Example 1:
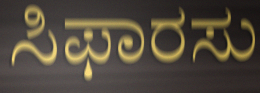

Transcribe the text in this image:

ಸಿಫಾರಸು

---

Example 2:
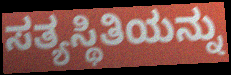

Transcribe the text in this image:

ಸತ್ಯಸ್ಥಿತಿಯನ್ನು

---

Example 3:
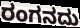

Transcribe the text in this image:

ರಂಗನದು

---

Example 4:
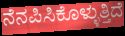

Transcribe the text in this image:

ನೆನಪಿಸಿಕೊಳ್ಳುತ್ತಿದೆ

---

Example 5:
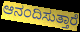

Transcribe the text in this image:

ಆನಂದಿಸುತ್ತಾರೆ